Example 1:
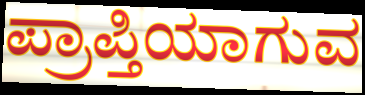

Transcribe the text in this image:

ಪ್ರಾಪ್ತಿಯಾಗುವ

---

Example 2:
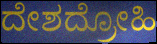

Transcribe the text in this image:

ದೇಶದ್ರೋಹಿ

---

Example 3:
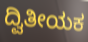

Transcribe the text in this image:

ದ್ವಿತೀಯಕ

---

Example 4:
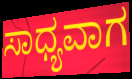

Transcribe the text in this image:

ಸಾಧ್ಯವಾಗ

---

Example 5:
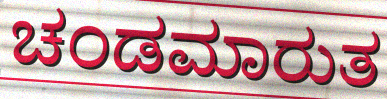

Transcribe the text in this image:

ಚಂಡಮಾರುತ